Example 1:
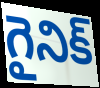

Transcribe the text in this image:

గైనిక్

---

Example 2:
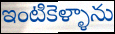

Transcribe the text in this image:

ఇంటికెళ్ళాను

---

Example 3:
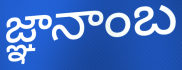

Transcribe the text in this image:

జ్ఞానాంబ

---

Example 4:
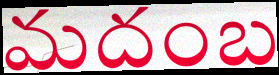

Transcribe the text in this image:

మదంబ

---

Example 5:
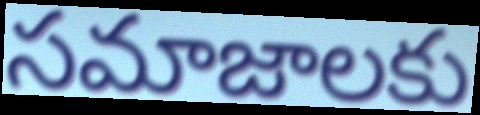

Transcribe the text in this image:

సమాజాలకు